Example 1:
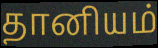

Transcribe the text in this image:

தானியம்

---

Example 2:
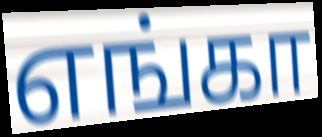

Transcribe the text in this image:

எங்கா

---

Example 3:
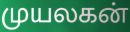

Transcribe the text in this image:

முயலகன்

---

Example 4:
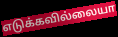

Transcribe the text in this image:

எடுக்கவில்லையா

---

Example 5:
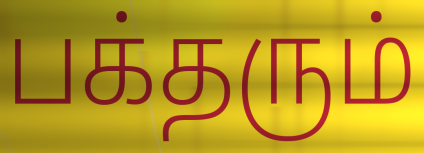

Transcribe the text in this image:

பக்தரும்